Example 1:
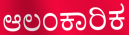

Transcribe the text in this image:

ಆಲಂಕಾರಿಕ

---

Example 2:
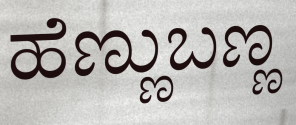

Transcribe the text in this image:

ಹೆಣ್ಣುಬಣ್ಣ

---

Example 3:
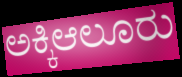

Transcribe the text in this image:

ಅಕ್ಕಿಆಲೂರು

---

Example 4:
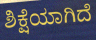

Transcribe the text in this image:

ಶಿಕ್ಷೆಯಾಗಿದೆ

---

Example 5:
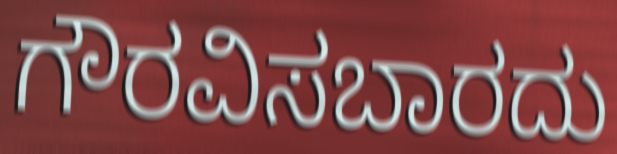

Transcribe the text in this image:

ಗೌರವಿಸಬಾರದು